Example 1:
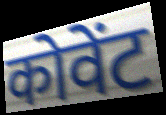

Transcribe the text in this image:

कोवेंट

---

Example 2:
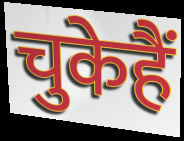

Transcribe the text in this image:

चुकेहैं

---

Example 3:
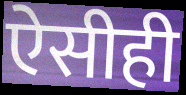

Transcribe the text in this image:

ऐसीही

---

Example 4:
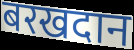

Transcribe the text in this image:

बरखदान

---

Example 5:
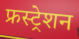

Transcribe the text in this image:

फ्रस्‍ट्रेशन